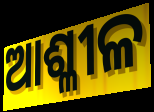
ଆଶ୍ଳୀଳ